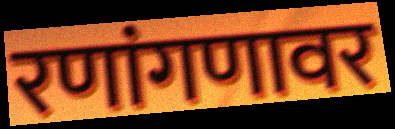
रणांगणावर